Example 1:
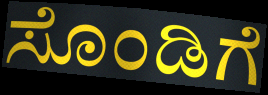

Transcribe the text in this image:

ಸೊಂಡಿಗೆ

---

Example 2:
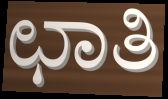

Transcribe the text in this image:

ಛಾತಿ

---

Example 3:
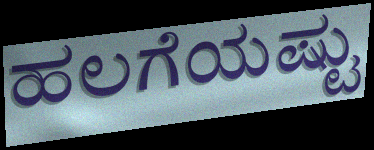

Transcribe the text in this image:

ಹಲಗೆಯಷ್ಟು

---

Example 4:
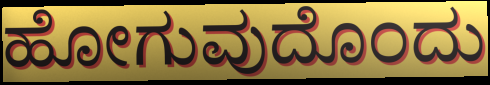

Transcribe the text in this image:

ಹೋಗುವುದೊಂದು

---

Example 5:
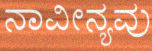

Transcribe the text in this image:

ನಾವೀನ್ಯವು